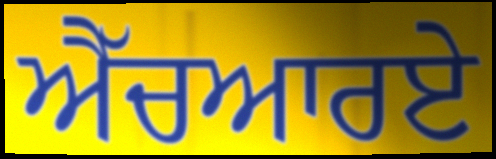
ਐੱਚਆਰਏ